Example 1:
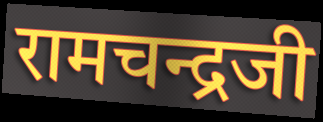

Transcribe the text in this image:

रामचन्द्रजी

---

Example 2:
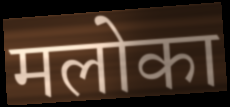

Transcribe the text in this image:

मलोका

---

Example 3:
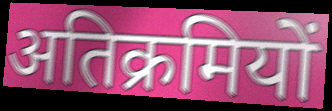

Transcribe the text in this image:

अतिक्रमियों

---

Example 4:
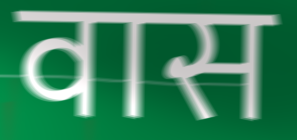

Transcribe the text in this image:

वास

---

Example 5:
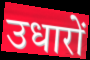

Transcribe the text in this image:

उधारों